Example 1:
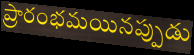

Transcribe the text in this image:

ప్రారంభమయినప్పుడు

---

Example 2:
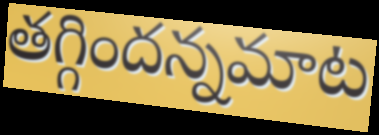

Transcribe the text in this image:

తగ్గిందన్నమాట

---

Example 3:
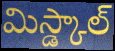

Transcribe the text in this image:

మిస్డ్కాల్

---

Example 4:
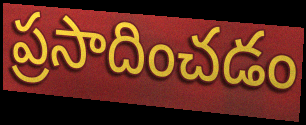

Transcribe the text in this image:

ప్రసాదించడం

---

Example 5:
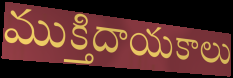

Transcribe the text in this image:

ముక్తిదాయకాలు